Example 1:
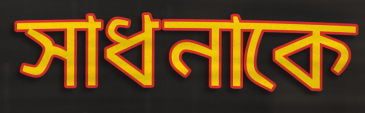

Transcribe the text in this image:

সাধনাকে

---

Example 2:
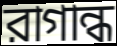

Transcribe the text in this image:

রাগান্ধ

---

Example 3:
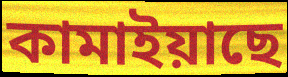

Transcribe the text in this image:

কামাইয়াছে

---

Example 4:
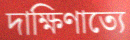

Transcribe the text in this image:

দাক্ষিণাত্যে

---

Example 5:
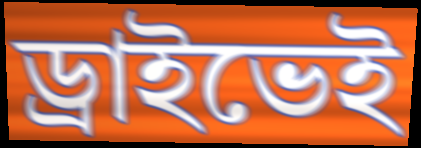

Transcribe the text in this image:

ড্রাইভেই